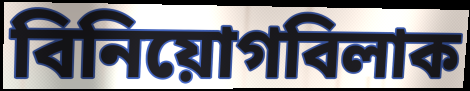
বিনিয়োগবিলাক